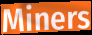
Miners